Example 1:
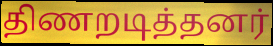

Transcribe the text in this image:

திணறடித்தனர்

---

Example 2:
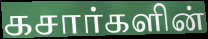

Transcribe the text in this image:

கசார்களின்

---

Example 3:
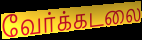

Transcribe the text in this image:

வேர்க்கடலை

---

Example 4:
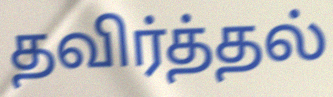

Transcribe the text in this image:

தவிர்த்தல்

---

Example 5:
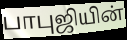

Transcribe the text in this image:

பாபுஜியின்